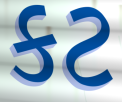
કટ